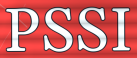
PSSI